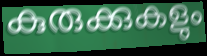
കുരുക്കുകളും